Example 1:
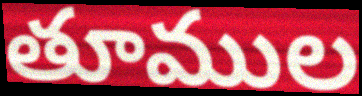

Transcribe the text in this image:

తూముల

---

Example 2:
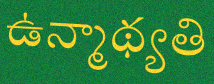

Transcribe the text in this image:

ఉన్మాథ్యతి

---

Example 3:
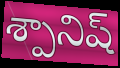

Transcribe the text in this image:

శ్పానిష్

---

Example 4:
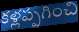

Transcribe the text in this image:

కళ్లప్పగించి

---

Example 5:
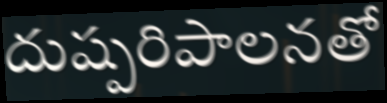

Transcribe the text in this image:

దుష్పరిపాలనతో